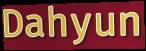
Dahyun